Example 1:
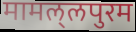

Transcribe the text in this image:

मामल्लपुरम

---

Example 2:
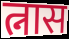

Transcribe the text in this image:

त्नास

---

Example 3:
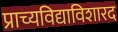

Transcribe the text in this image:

प्राच्यविद्याविशारद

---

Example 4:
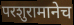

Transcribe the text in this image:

परशुरामानेच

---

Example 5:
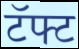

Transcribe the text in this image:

टॅफ्ट